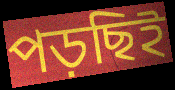
পড়ছিই